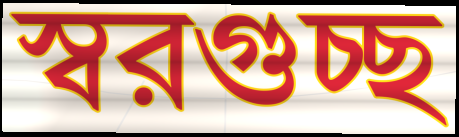
স্বরগুচ্ছ